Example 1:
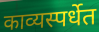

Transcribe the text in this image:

काव्यस्पर्धेत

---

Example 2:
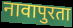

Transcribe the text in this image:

नावापुरता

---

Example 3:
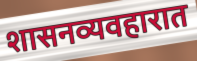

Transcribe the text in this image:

शासनव्यवहारात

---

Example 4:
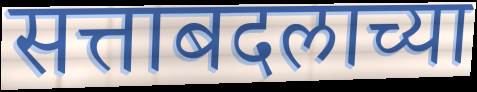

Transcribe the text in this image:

सत्ताबदलाच्या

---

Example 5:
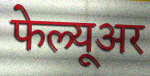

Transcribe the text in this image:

फेल्यूअर